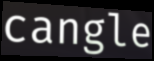
cangle